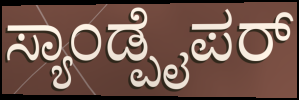
ಸ್ಯಾಂಡ್ಪೈಪರ್